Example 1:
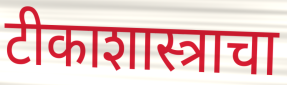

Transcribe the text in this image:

टीकाशास्त्राचा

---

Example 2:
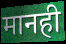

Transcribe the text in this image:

मानही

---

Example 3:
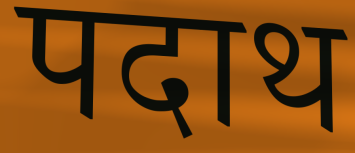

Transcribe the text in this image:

पदाथ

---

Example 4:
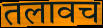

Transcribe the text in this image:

तलावच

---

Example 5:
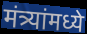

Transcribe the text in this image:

मंत्र्यांमध्ये